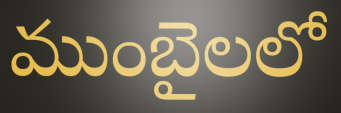
ముంబైలలో